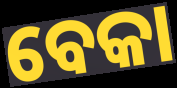
ବେକା